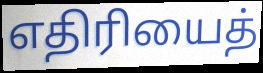
எதிரியைத்